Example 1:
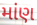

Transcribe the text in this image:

માંણ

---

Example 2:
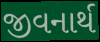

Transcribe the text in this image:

જીવનાર્થ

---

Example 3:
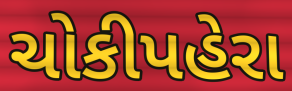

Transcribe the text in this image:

ચોકીપહેરા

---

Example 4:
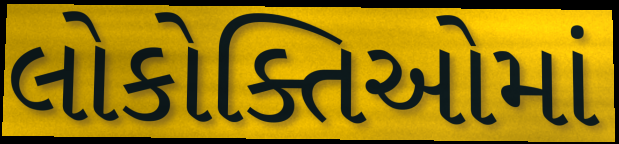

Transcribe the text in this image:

લોકોક્તિઓમાં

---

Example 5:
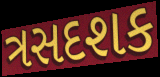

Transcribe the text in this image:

ત્રસદશક